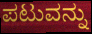
ಪಟುವನ್ನು